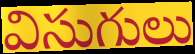
విసుగులు